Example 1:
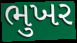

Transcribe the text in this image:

ભુખર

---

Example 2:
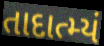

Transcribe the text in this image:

તાદાત્મ્યં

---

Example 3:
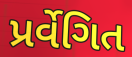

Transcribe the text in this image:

પ્રર્વેગિત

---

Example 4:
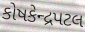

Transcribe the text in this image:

કોષકેન્દ્રપટલ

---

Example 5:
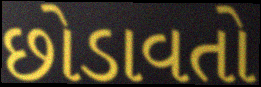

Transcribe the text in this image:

છોડાવતો